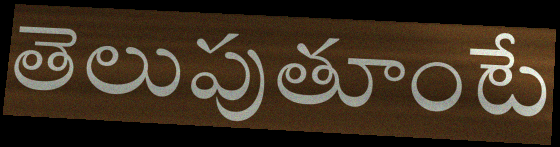
తెలుపుతూంటే